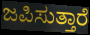
ಜಪಿಸುತ್ತಾರೆ